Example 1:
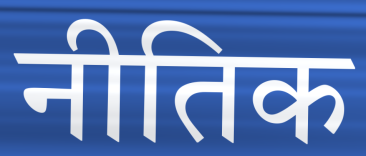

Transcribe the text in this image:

नीतिक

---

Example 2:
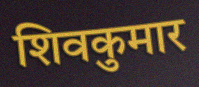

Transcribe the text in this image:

शिवकुमार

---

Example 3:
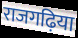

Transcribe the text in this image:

राजगढ़िया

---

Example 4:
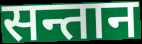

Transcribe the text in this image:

सन्तान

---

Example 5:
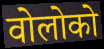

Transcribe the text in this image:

वोलोको